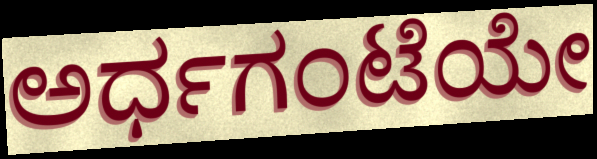
ಅರ್ಧಗಂಟೆಯೇ